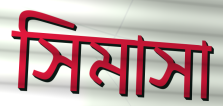
সিমাসা